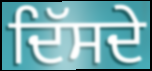
ਦਿੱਸਦੇ